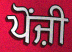
ਪੋਂਜ਼ੀ